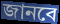
জানবে